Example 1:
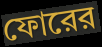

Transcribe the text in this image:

ফোরের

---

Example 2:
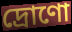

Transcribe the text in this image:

দ্রোণো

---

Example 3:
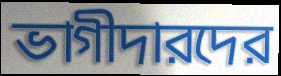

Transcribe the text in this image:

ভাগীদারদের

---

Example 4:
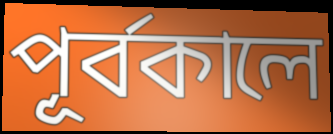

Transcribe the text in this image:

পূর্বকালে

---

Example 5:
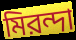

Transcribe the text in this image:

মিরন্দা